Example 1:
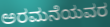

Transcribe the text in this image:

ಅರಮನೆಯವರ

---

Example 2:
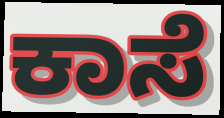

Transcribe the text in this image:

ಕಾಸೆ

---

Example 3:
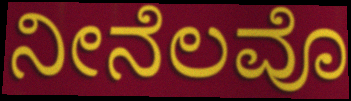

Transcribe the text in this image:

ನೀನೆಲವೊ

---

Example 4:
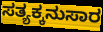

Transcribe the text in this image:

ಸತ್ಯಕ್ಕನುಸಾರ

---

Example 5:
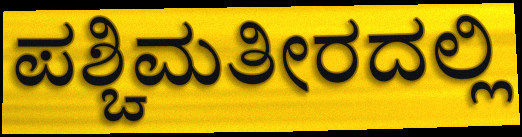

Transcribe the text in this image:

ಪಶ್ಚಿಮತೀರದಲ್ಲಿ